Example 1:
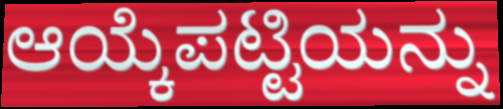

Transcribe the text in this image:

ಆಯ್ಕೆಪಟ್ಟಿಯನ್ನು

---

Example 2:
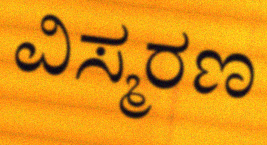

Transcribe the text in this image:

ವಿಸ್ಮರಣ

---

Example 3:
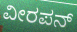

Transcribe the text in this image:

ವೀರಪನ್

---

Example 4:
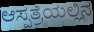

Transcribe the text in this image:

ಆಸ್ಪತ್ರೆಯಲ್ಲಿನ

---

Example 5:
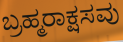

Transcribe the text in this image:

ಬ್ರಹ್ಮರಾಕ್ಷಸವು